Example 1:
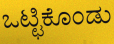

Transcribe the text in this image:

ಒಟ್ಟಿಕೊಂಡು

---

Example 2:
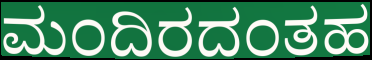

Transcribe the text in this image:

ಮಂದಿರದಂತಹ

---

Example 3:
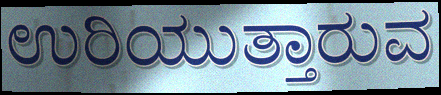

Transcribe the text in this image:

ಉರಿಯುತ್ತಾರುವ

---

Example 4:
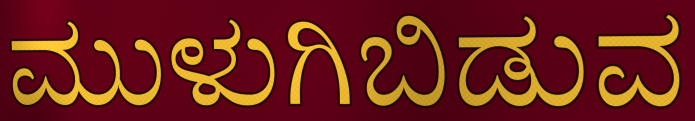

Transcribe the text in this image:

ಮುಳುಗಿಬಿಡುವ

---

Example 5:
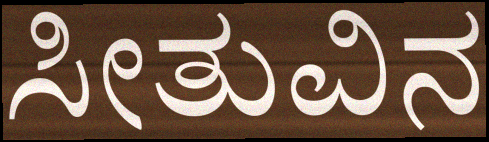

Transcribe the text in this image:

ಸೀತುವಿನ